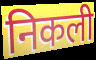
निकली